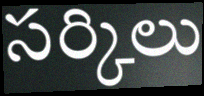
సర్కిలు